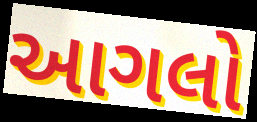
આગલો